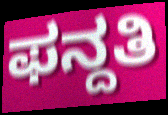
ಫನ್ದತಿ